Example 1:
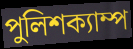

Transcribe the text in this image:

পুলিশক্যাম্প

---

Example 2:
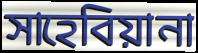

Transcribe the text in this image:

সাহেবিয়ানা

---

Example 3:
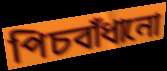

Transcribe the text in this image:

পিচবাঁধানো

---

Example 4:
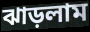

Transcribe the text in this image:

ঝাড়লাম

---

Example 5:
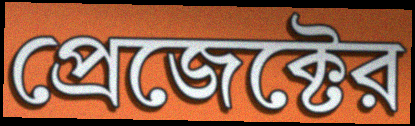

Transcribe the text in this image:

প্রেজেক্টের